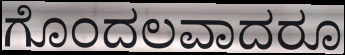
ಗೊಂದಲವಾದರೂ